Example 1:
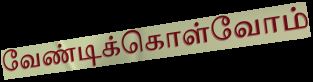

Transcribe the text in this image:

வேண்டிக்கொள்வோம்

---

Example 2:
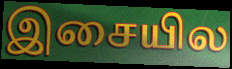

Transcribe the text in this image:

இசையில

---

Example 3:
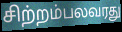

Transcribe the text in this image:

சிற்றம்பலவரது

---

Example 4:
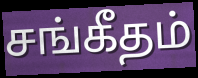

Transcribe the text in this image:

சங்கீதம்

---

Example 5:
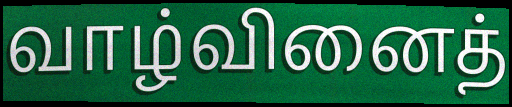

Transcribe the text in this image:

வாழ்வினைத்